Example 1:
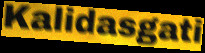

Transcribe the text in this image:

Kalidasgati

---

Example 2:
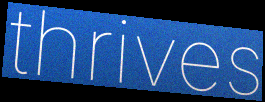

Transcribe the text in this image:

thrives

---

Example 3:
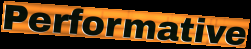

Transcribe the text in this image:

Performative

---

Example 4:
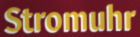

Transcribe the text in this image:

Stromuhr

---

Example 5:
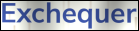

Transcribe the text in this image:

Exchequer